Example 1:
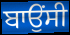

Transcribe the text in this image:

ਬਾਉਂਸੀ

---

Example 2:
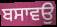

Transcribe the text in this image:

ਬਸਾਵਉ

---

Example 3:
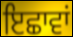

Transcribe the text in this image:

ਇਛਾਵਾਂ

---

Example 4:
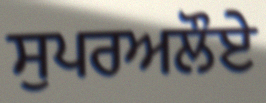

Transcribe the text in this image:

ਸੁਪਰਅਲੌਏ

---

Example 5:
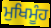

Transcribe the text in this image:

ਮੁਖਿਮੂੰਹ